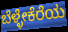
ಬೆಳ್ಳೇಕೆರೆಯ